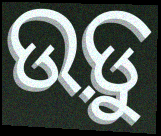
ଉଡ଼ୁ